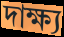
দাক্ষ্য